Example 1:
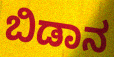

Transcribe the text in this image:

ಬಿಡಾನ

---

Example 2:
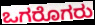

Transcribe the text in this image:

ಒಗರೊಗರು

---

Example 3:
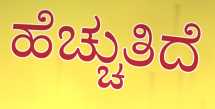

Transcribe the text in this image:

ಹೆಚ್ಚುತಿದೆ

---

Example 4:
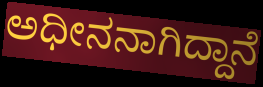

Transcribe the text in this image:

ಅಧೀನನಾಗಿದ್ದಾನೆ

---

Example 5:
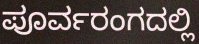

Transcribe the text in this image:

ಪೂರ್ವರಂಗದಲ್ಲಿ